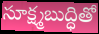
సూక్ష్మబుద్ధితో